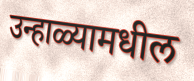
उन्हाळ्यामधील